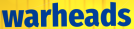
warheads